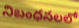
నిబంధనలలో